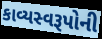
કાવ્યસ્વરૂપોની